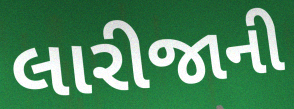
લારીજાની